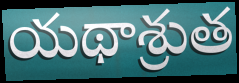
యథాశ్రుత